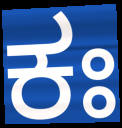
ಕಃ